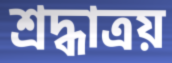
শ্রদ্ধাত্রয়